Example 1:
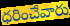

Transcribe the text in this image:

ధరించేవారు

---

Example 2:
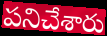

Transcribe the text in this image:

పనిచేశారు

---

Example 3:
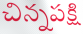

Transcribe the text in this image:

చిన్నపక్షి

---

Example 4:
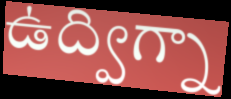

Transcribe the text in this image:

ఉద్విగ్నా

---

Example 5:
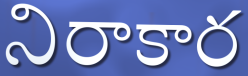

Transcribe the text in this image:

నిరాకార